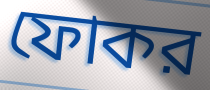
ফোকর